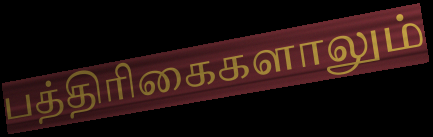
பத்திரிகைகளாலும்